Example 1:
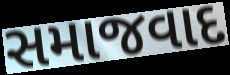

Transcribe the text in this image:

સમાજવાદ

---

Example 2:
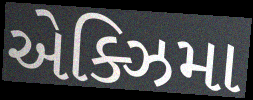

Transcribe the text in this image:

એક્ઝિમા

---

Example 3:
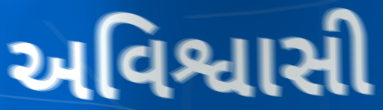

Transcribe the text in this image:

અવિશ્વાસી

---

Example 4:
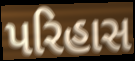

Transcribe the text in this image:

પરિહાસ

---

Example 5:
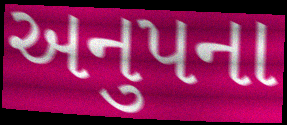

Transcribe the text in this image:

અનુપના